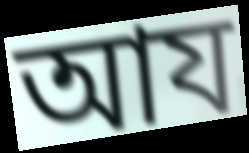
আয